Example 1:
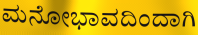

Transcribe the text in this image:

ಮನೋಭಾವದಿಂದಾಗಿ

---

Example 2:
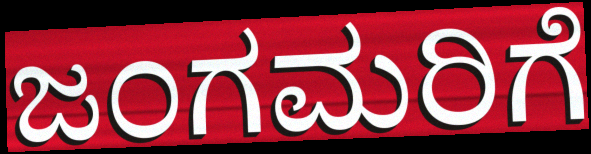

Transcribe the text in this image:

ಜಂಗಮರಿಗೆ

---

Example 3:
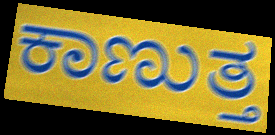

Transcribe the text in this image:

ಕಾಣುತ್ತ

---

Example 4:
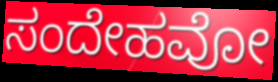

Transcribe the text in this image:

ಸಂದೇಹವೋ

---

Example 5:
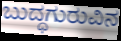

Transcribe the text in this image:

ಬುದ್ಧಗುರುವಿನ